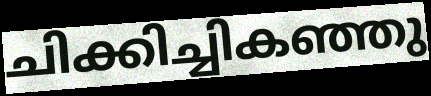
ചിക്കിച്ചികഞ്ഞു